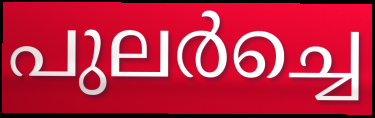
പുലർച്ചെ